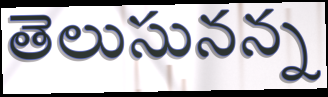
తెలుసునన్న